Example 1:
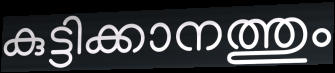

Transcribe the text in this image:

കുട്ടിക്കാനത്തും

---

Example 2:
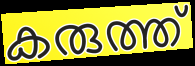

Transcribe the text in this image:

കരുത്ത്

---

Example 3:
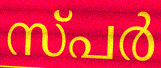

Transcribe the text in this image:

സ്പർ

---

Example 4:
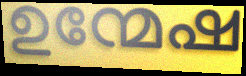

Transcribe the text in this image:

ഉന്മേഷ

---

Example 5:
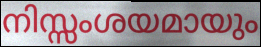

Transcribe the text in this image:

നിസ്സംശയമായും